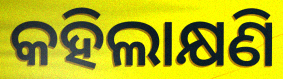
କହିଲାକ୍ଷଣି